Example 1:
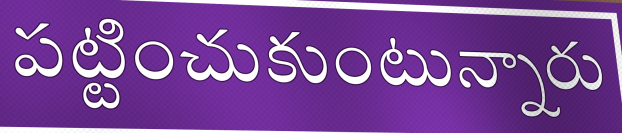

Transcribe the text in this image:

పట్టించుకుంటున్నారు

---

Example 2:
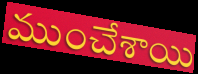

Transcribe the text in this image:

ముంచేశాయి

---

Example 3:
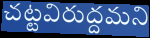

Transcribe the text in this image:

చట్టవిరుద్దమని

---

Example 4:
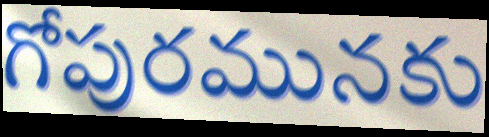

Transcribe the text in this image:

గోపురమునకు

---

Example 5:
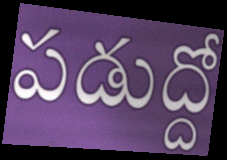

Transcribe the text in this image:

పడుద్దో